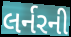
લર્નરની